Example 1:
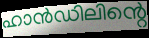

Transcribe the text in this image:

ഹാൻഡിലിന്റെ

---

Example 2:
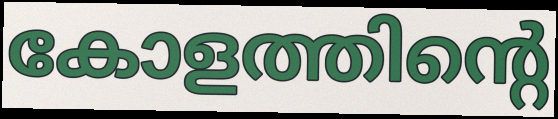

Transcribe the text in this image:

കോളത്തിന്റെ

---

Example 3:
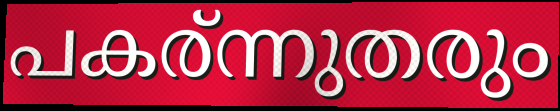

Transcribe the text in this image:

പകര്ന്നുതരും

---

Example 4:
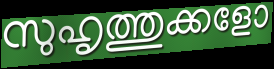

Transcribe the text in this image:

സുഹൃത്തുക്കളോ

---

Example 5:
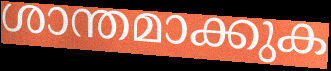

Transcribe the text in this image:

ശാന്തമാക്കുക